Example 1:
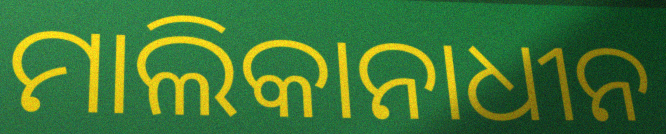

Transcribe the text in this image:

ମାଲିକାନାଧୀନ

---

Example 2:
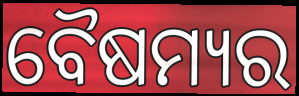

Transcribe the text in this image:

ବୈଷମ୍ଯର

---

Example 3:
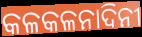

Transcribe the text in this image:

କଳକଳନାଦିନୀ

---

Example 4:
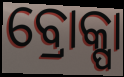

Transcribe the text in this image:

ବ୍ରୋକ୍ପା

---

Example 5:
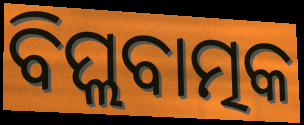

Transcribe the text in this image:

ବିପ୍ଲବାତ୍ମକ